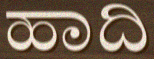
ಹಾದಿ